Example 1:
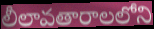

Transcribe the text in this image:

లీలావతారాలలోని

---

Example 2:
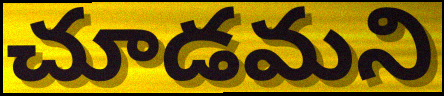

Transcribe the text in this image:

చూడమని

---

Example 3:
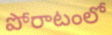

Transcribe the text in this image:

పోరాటంలో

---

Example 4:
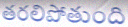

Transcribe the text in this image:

తరలిపోతుంది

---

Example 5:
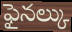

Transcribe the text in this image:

ఫైనల్కు